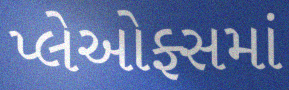
પ્લેઓફ્સમાં